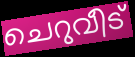
ചെറുവീട്